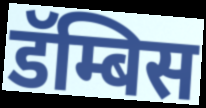
डॅम्बिस